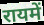
रायमें